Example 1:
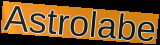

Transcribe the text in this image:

Astrolabe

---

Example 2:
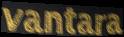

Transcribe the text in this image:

vantara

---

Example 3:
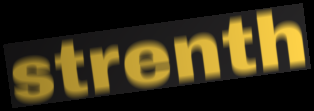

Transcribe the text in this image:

strenth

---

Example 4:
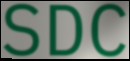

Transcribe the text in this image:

SDC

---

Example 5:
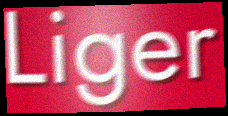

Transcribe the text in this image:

Liger